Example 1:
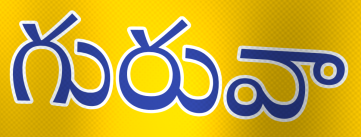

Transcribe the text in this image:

గురువా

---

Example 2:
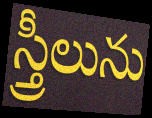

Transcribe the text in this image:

స్త్రీలును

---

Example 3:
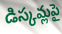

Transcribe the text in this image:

డిస్కమ్లపై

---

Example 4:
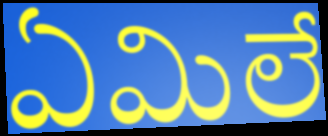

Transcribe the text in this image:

ఏమిలే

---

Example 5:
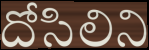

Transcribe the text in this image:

దోసిలిని